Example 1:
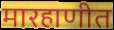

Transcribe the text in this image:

मारहाणीत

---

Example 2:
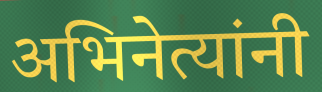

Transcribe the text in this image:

अभिनेत्यांनी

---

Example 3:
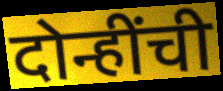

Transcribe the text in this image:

दोन्हींची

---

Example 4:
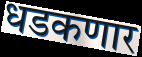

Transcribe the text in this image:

धडकणार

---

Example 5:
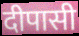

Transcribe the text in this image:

दीपासी